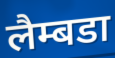
लैम्बडा